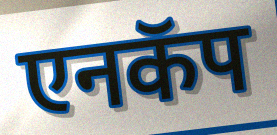
एनकॅप